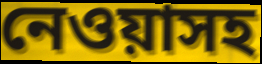
নেওয়াসহ